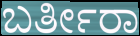
ಬರ್ತೀರಾ